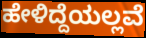
ಹೇಳಿದ್ದೆಯಲ್ಲವೆ